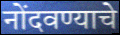
नोंदवण्याचे